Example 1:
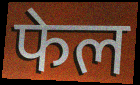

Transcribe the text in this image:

फेल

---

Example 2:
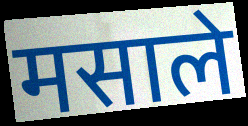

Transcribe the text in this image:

मसाले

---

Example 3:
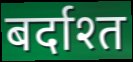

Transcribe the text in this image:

बर्दाश्त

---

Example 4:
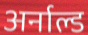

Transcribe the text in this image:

अर्नाल्ड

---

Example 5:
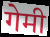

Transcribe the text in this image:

गेमी